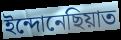
ইন্দোনেছিয়াত